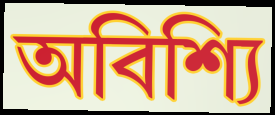
অবিশ্যি